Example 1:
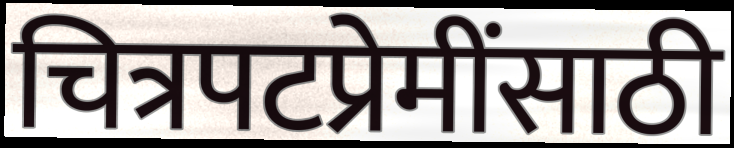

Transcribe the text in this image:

चित्रपटप्रेमींसाठी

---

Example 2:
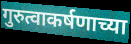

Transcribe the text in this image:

गुरुत्वाकर्षणाच्या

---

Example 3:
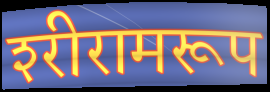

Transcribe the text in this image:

श्रीरामरूप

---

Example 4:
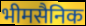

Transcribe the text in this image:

भीमसैनिक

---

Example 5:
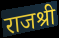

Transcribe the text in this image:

राजश्री